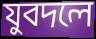
যুবদলে